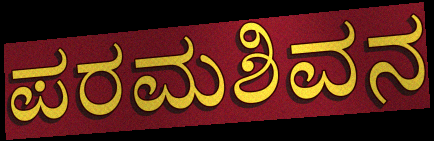
ಪರಮಶಿವನ